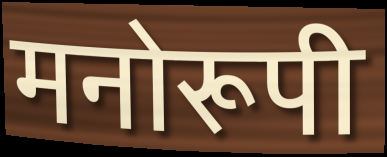
मनोरूपी